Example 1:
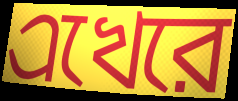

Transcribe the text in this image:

এখেরে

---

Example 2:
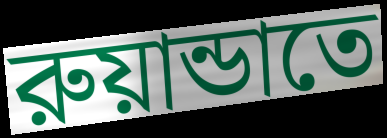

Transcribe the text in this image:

রুয়ান্ডাতে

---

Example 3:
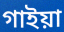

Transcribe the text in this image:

গাইয়া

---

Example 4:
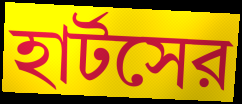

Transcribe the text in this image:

হার্টসের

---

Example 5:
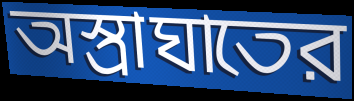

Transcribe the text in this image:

অস্ত্রাঘাতের